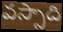
వస్సాది